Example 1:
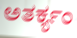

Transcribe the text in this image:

ಅತರ್ಕ್ಯಂ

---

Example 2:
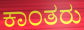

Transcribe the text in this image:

ಕಾಂತರು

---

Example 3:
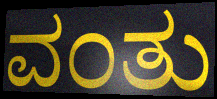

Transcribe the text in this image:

ವಂತು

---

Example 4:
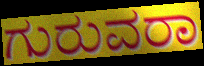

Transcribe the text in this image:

ಗುರುವರಾ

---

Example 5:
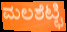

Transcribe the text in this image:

ಮಲಶೆಟ್ಟಿ